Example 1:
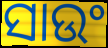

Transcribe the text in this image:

ସାଉଂ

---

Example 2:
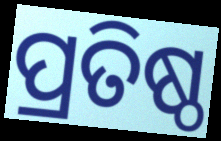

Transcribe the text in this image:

ପ୍ରତିଷ୍ଠ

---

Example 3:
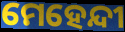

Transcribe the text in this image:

ମେହେନ୍ଦୀ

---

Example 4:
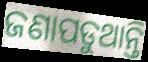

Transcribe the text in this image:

ଜଣାପଡୁଥାନ୍ତି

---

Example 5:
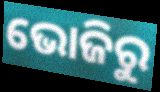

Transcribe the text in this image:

ଭୋଜିରୁ